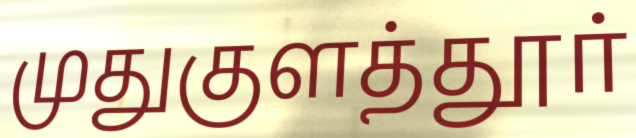
முதுகுளத்தூர்